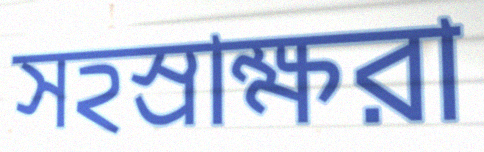
সহস্রাক্ষরা